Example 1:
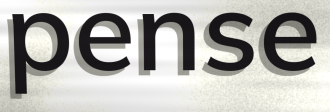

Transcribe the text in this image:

pense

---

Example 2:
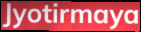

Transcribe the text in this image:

Jyotirmaya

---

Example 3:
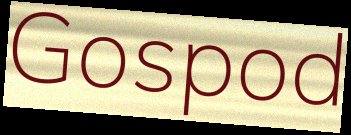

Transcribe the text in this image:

Gospod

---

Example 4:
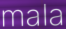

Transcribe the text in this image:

mala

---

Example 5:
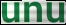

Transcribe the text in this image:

unu